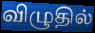
விழுதில்